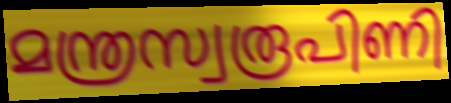
മന്ത്രസ്വരൂപിണി